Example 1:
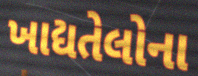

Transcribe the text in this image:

ખાદ્યતેલોના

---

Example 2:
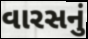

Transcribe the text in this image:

વારસનું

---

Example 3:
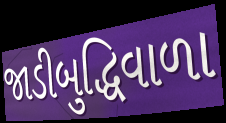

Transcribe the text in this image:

જાડીબુદ્ધિવાળા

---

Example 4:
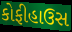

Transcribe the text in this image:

કોફીહાઉસ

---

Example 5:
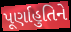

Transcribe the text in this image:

પૂર્ણાહુતિને